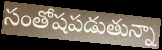
సంతోషపడుతున్నా